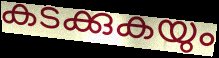
കടക്കുകയും